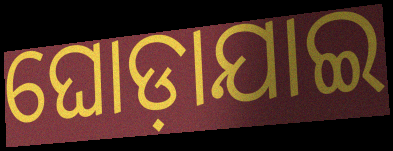
ଘୋଡ଼ାଯାଇ